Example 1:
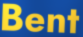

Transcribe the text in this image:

Bent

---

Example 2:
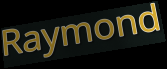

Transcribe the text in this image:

Raymond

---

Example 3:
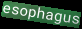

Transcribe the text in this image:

esophagus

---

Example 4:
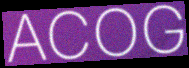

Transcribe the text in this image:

ACOG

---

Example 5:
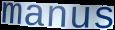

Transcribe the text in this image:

manus